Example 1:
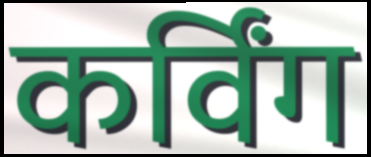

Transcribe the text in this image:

कर्विंग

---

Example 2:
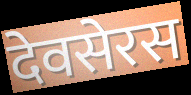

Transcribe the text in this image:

देवसेरस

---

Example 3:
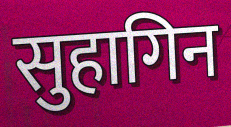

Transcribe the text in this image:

सुहागिन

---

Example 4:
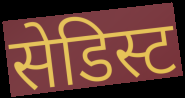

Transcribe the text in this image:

सेडिस्ट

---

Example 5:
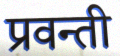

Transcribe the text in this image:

प्रवन्ती